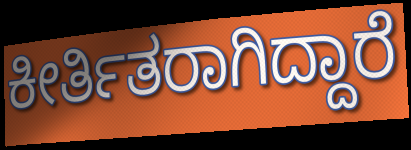
ಕೀರ್ತಿತರಾಗಿದ್ದಾರೆ